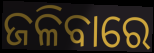
ଜଳିବାରେ